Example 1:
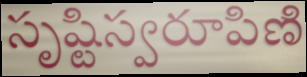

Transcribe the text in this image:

సృష్టిస్వరూపిణి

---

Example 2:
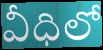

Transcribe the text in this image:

వీధిలో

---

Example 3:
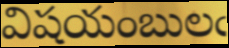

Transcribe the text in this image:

విషయంబులఁ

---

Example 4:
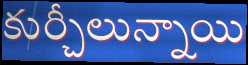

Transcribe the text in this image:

కుర్చీలున్నాయి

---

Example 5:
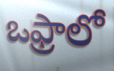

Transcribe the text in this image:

ఒఫ్రాలో